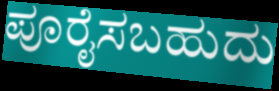
ಪೂರೈಸಬಹುದು